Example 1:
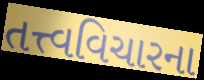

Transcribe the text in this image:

તત્ત્વવિચારના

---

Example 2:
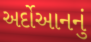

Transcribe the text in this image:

અર્દોઆનનું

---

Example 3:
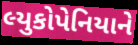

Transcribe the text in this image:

લ્યુકોપેનિયાને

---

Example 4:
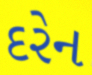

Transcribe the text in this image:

દરેન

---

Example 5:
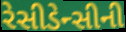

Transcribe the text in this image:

રેસીડેન્સીની